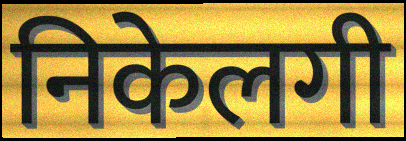
निकेलगी